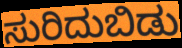
ಸುರಿದುಬಿಡು